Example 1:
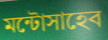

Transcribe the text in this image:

মন্টোসাহেব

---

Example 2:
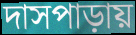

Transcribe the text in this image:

দাসপাড়ায়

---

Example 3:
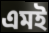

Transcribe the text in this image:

এমই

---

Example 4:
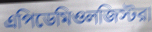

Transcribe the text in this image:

এপিডেমিওলজিস্টরা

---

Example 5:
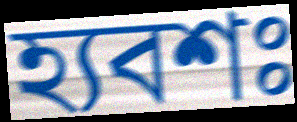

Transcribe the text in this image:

হ্যবশঃ